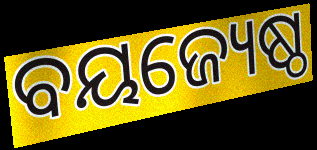
ବୟଜ୍ୟେଷ୍ଠ